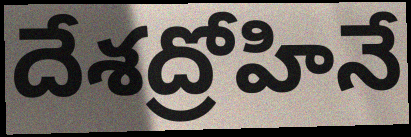
దేశద్రోహినే